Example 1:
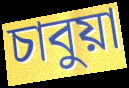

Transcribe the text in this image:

চাবুয়া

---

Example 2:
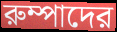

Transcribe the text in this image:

রুম্পাদের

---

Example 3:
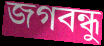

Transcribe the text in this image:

জগবন্ধু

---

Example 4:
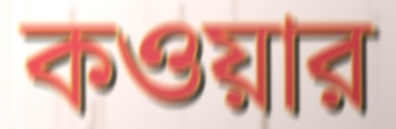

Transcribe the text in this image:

কওয়ার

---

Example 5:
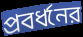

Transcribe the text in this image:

প্রবর্ধনের